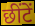
छींटें